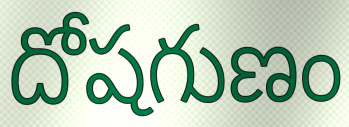
దోషగుణం